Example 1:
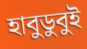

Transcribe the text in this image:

হাবুডুবুই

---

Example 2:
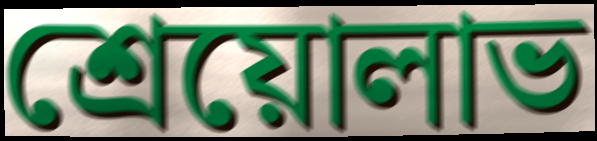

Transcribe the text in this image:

শ্রেয়োলাভ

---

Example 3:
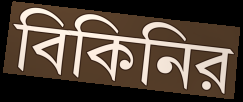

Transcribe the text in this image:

বিকিনির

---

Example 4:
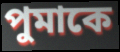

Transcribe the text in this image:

পুমাকে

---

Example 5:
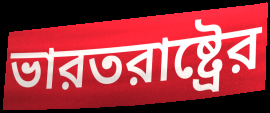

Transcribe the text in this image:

ভারতরাষ্ট্রের